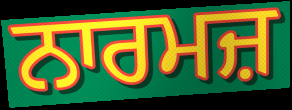
ਨਾਰਮਜ਼